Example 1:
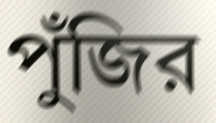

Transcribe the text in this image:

পুঁজির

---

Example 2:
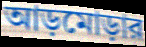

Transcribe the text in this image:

আড়মোড়ার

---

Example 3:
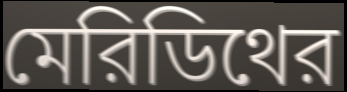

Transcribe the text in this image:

মেরিডিথের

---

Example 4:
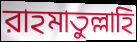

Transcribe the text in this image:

রাহমাতুল্লাহি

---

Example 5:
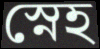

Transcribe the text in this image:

স্নেহ